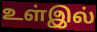
உள்இல்